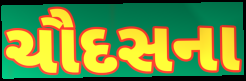
ચૌદસના